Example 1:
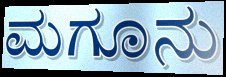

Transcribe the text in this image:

ಮಗೂನು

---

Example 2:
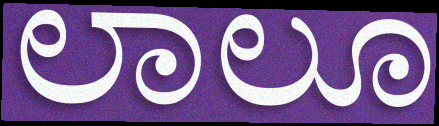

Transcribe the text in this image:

ಲಾಲೂ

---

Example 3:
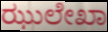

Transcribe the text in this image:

ಝುಲೇಖಾ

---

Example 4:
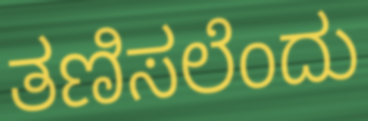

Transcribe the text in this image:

ತಣಿಸಲೆಂದು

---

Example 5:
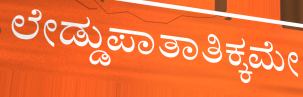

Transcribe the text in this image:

ಲೇಡ್ಡುಪಾತಾತಿಕ್ಕಮೇ